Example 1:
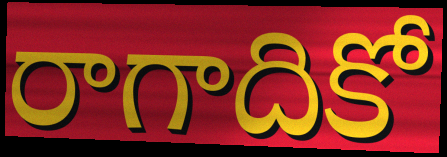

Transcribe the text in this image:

రాగాదికో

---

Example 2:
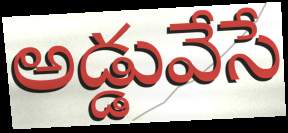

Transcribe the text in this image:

అడ్డువేసే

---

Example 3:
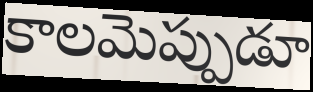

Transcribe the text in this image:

కాలమెప్పుడూ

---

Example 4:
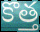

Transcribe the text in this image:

కొత్త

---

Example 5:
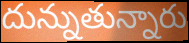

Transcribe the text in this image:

దున్నుతున్నారు